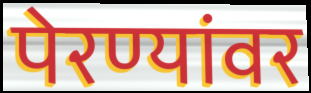
पेरण्यांवर